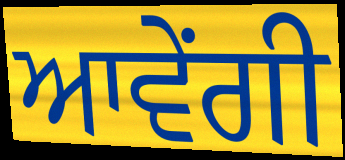
ਆਵੇਂਗੀ